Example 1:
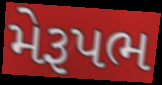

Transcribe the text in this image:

મેરૂપભ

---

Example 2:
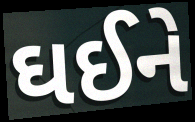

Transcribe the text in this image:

ઘઈને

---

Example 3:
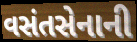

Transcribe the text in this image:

વસંતસેનાની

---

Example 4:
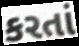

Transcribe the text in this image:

કરતાં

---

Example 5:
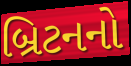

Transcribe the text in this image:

બ્રિટનનો